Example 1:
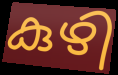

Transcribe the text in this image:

കുഴി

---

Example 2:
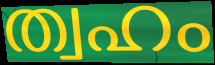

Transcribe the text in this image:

ത്വഹം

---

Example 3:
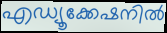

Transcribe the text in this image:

എഡ്യൂക്കേഷനിൽ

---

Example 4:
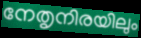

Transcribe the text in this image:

നേതൃനിരയിലും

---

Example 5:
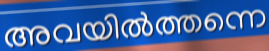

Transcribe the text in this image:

അവയിൽത്തന്നെ